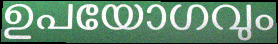
ഉപയോഗവും